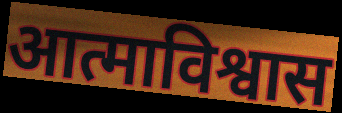
आत्माविश्वास